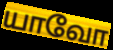
யாவோ